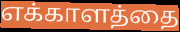
எக்காளத்தை